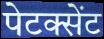
पेटक्सेंट